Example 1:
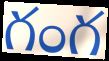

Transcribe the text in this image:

గంగ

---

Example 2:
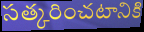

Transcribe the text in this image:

సత్కరించటానికి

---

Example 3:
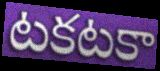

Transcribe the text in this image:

టకటకా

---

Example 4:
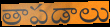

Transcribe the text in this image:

తాపడాలు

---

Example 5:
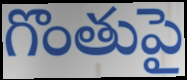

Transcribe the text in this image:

గొంతుపై